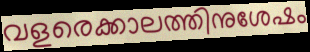
വളരെക്കാലത്തിനുശേഷം